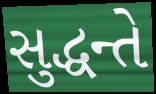
સુદ્ધન્તે